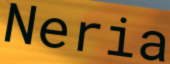
Neria